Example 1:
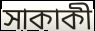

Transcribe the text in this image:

সাকাকী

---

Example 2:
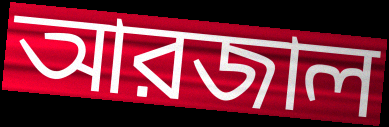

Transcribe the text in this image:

আরজাল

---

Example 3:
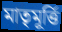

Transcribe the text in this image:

মাতৃমূর্ত্তি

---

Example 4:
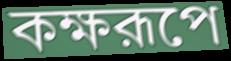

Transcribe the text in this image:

কক্ষরূপে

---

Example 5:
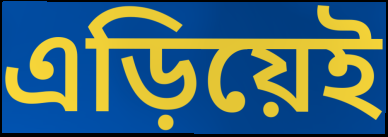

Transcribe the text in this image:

এড়িয়েই